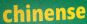
chinense